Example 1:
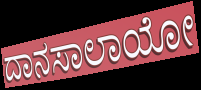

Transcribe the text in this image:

ದಾನಸಾಲಾಯೋ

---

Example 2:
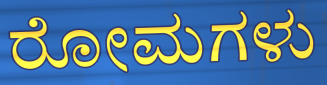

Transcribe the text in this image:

ರೋಮಗಳು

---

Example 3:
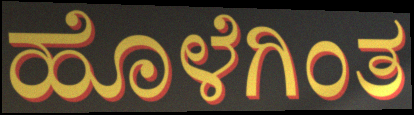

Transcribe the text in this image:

ಹೊಳೆಗಿಂತ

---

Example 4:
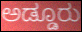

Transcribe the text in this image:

ಅಡ್ಡೂರು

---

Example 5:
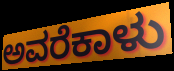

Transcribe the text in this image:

ಅವರೆಕಾಳು